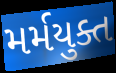
મર્મયુક્ત